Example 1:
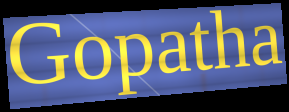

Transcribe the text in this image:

Gopatha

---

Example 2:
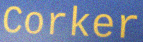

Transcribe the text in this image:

Corker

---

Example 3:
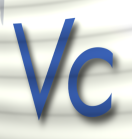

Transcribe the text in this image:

Vc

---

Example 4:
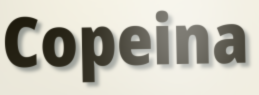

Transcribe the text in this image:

Copeina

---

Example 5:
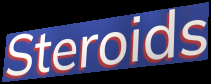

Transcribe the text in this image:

Steroids